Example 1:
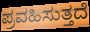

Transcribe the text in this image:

ಪ್ರವಹಿಸುತ್ತದೆ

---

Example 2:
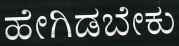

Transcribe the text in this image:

ಹೇಗಿಡಬೇಕು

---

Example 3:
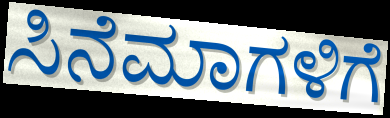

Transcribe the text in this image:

ಸಿನೆಮಾಗಳಿಗೆ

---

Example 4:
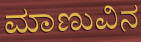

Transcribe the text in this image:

ಮಾಣುವಿನ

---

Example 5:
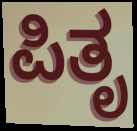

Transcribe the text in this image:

ಪಿತೃ